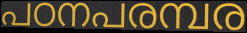
പഠനപരമ്പര